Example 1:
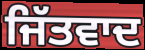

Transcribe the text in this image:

ਜਿੱਤਵਾਦ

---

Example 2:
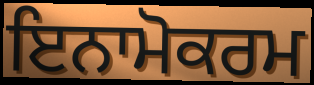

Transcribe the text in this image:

ਇਨਾਮੋਕਰਮ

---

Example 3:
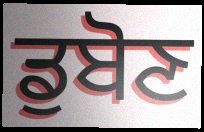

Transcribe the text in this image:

ਡੁਬੋਣ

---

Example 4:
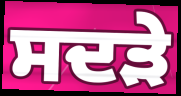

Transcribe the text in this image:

ਸਦੜੇ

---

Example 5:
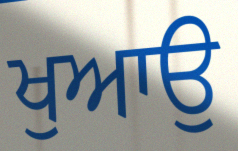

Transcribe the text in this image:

ਖੁਆਉ